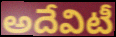
అదేవిటీ